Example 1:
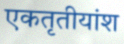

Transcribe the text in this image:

एकतृतीयांश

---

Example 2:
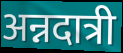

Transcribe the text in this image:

अन्नदात्री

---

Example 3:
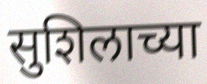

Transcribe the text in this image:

सुशिलाच्या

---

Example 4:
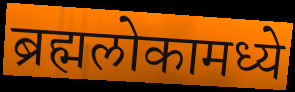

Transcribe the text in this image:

ब्रह्मलोकामध्ये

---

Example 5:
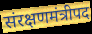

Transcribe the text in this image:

संरक्षणमंत्रीपद